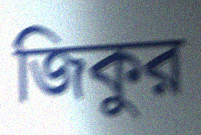
জিকুর